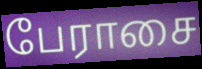
பேராசை